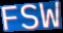
FSW